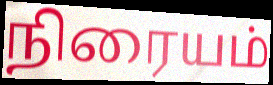
நிரையம்